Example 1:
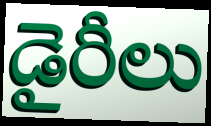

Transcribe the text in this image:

డైరీలు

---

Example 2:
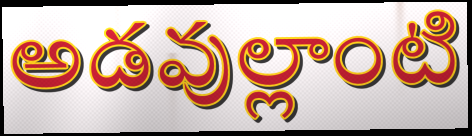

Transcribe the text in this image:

అడవుల్లాంటి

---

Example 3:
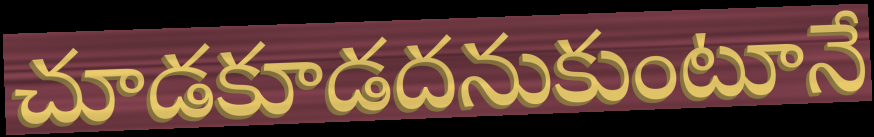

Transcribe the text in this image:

చూడకూడదనుకుంటూనే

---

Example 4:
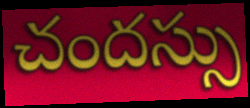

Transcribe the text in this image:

చందస్సు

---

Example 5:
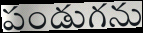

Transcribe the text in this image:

పండుగను